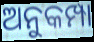
ଅନୁକମ୍ପା